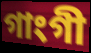
গাংগী